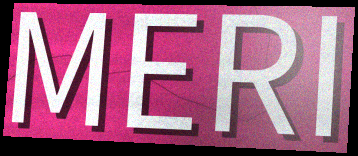
MERI